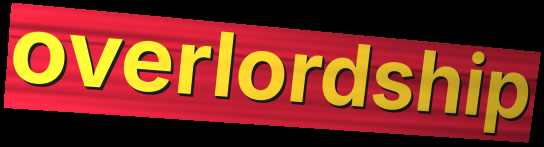
overlordship